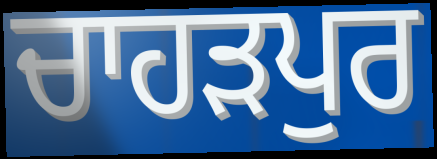
ਚਾਹਡ਼ਪੁਰ